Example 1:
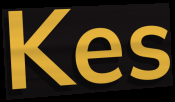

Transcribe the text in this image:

Kes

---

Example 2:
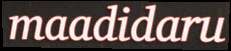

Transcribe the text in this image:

maadidaru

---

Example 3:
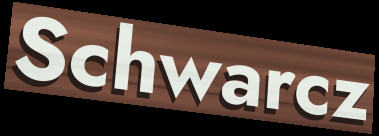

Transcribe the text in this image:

Schwarcz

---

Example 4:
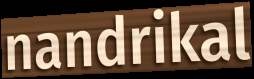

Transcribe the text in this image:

nandrikal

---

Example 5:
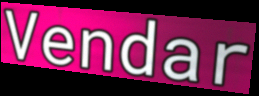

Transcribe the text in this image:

Vendar